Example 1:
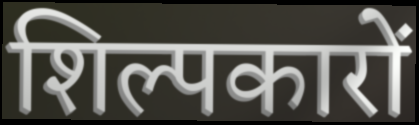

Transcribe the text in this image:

शिल्पकारों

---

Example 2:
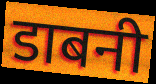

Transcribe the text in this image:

डाबनी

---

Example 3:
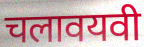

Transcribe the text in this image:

चलावयवी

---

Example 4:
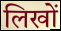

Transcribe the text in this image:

लिखों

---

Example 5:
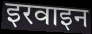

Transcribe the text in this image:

इरवाइन